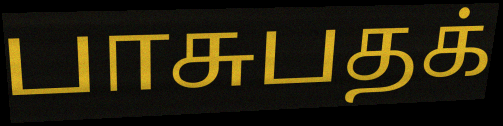
பாசுபதக்